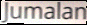
Jumalan